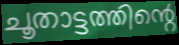
ചൂതാട്ടത്തിന്റെ